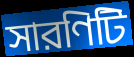
সারণিটি